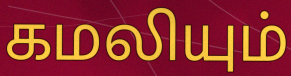
கமலியும்